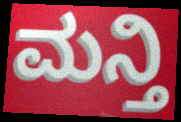
ಮನ್ತಿ